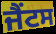
ਜੈਂਟਸ